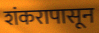
शंकरापासून